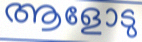
ആളോടു